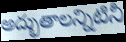
అద్భుతాలన్నిటినీ